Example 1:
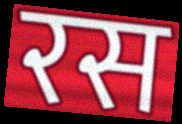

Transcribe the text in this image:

रस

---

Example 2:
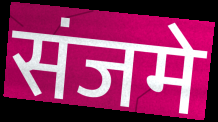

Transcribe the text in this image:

संजमे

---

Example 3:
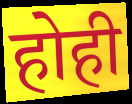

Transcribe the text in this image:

होही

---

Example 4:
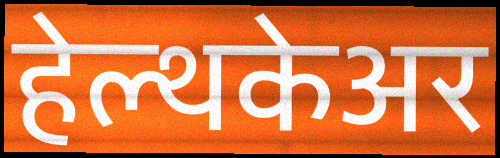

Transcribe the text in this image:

हेल्थकेअर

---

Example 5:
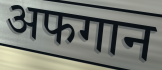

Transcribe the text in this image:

अफगान